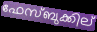
ഫേസ്ബുക്കില്